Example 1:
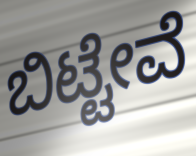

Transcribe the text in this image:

ಬಿಟ್ಟೇವೆ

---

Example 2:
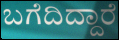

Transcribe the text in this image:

ಬಗೆದಿದ್ದಾರೆ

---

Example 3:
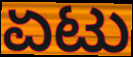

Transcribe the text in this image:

ಏಟು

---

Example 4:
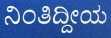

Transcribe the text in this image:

ನಿಂತಿದ್ದೀಯ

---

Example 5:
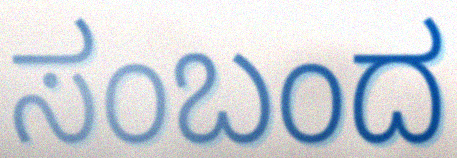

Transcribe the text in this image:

ಸಂಬಂದ